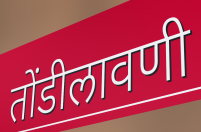
तोंडीलावणी